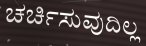
ಚರ್ಚಿಸುವುದಿಲ್ಲ